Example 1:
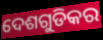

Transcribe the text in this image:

ଦେଶଗୁଡିକର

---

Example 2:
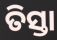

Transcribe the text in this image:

ତିସ୍ତା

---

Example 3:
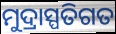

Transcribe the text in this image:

ମୁଦ୍ରାସ୍ପତିଗତ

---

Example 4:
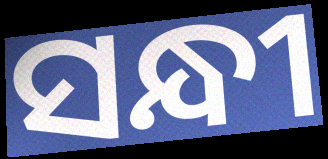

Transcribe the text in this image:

ସନ୍ଧୀ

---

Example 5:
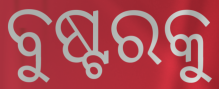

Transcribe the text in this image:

ବୁଷ୍ଟରକୁ